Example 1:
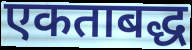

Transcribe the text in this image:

एकताबद्ध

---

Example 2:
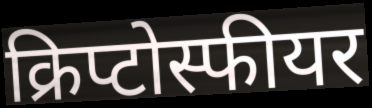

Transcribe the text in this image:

क्रिप्टोस्फीयर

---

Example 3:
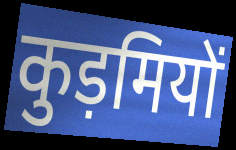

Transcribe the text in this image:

कुड़मियों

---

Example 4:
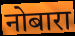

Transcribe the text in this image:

नोबारा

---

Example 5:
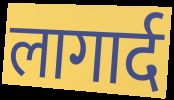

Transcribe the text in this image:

लागार्द